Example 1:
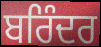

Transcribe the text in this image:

ਬਰਿੰਦਰ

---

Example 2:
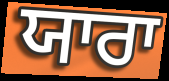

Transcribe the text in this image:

ਯਾਰਾ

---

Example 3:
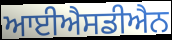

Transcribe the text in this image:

ਆਈਐਸਡੀਐਨ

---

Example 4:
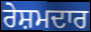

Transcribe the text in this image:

ਰੇਸ਼ਮਦਾਰ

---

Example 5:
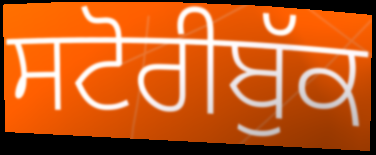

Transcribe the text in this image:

ਸਟੋਰੀਬੁੱਕ